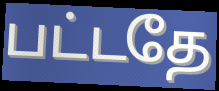
பட்டதே